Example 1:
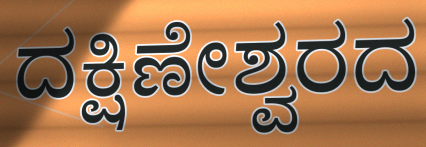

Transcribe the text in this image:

ದಕ್ಷಿಣೇಶ್ವರದ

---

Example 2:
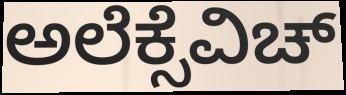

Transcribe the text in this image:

ಅಲೆಕ್ಸೆವಿಚ್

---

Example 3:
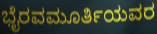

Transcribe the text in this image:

ಭೈರವಮೂರ್ತಿಯವರ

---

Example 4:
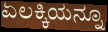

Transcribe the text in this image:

ಏಲಕ್ಕಿಯನ್ನೂ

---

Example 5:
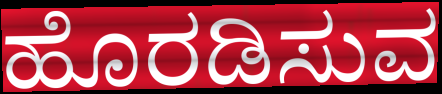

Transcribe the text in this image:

ಹೊರಡಿಸುವ